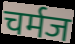
चर्मज